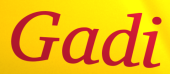
Gadi